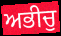
ਅਭੀਚੁ